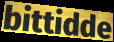
bittidde